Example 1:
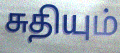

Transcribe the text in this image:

சுதியும்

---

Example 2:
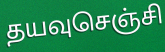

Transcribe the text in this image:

தயவுசெஞ்சி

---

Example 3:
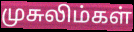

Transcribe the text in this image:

முசுலிம்கள்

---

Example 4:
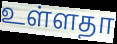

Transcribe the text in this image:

உள்ளதா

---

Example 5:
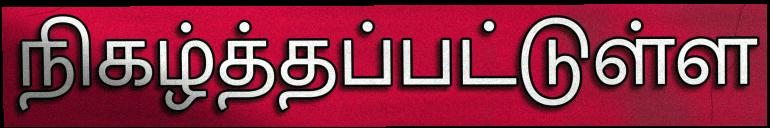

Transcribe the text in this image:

நிகழ்த்தப்பட்டுள்ள